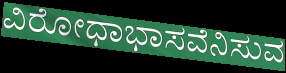
ವಿರೋಧಾಭಾಸವೆನಿಸುವ